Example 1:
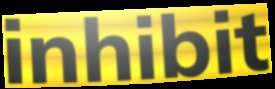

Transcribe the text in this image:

inhibit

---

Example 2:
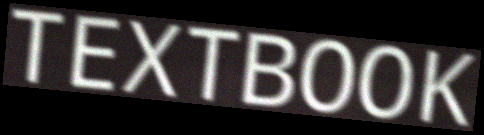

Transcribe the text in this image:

TEXTBOOK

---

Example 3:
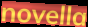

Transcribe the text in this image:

novella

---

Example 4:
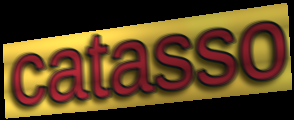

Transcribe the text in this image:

catasso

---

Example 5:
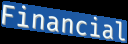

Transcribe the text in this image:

Financial